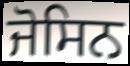
ਜੋਸਿਨ